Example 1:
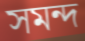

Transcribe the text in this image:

সমন্দ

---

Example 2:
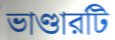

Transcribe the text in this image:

ভাণ্ডারটি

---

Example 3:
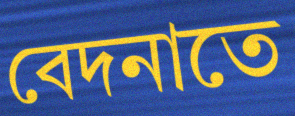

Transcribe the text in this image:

বেদনাতে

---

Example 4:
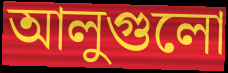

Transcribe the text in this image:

আলুগুলো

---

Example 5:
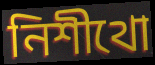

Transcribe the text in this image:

নিশীথো